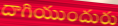
దాగియుందురు